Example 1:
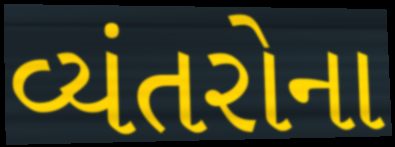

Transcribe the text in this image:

વ્યંતરોના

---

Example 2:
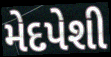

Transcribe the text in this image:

મેદપેશી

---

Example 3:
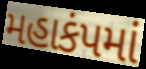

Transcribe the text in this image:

મહાકંપમાં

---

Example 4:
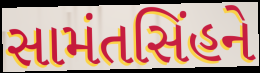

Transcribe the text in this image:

સામંતસિંહને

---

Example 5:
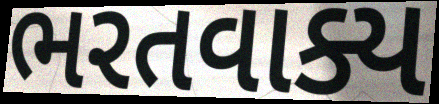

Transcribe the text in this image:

ભરતવાક્ય